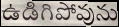
ఉడిగిపోవును